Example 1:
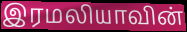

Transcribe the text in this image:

இரமலியாவின்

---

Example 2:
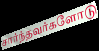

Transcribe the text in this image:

சார்ந்தவர்களோடு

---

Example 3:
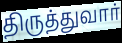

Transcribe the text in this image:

திருத்துவார்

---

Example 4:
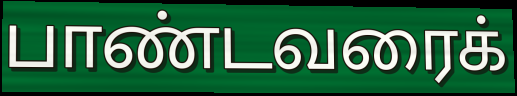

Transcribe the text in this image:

பாண்டவரைக்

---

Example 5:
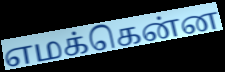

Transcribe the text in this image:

எமக்கென்ன